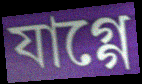
যাগ্গে